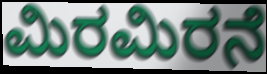
ಮಿರಮಿರನೆ